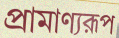
প্রামাণ্যরূপ